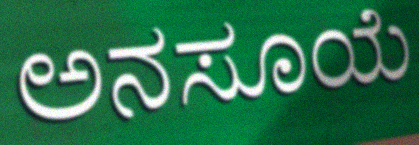
ಅನಸೂಯೆ